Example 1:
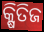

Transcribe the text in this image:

କ୍ଷିତିଜ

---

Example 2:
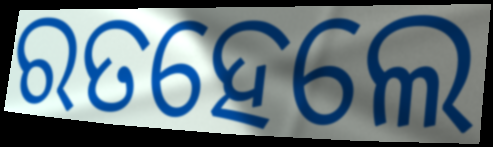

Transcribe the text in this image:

ରତହେଲେ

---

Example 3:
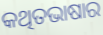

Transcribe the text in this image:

କଥିତଭାଷାର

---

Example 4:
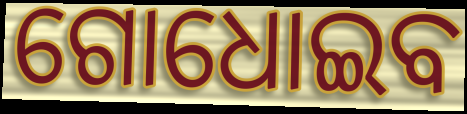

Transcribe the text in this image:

ଗୋଧୋଇବ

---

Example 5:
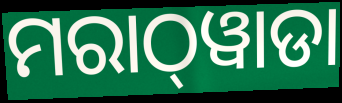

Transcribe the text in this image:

ମରାଠ୍‌ୱାଡା